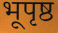
भूपृष्ठ